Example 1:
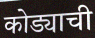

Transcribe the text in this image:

कोड्याची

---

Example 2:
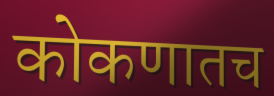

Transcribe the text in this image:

कोकणातच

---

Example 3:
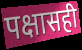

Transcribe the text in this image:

पक्षासही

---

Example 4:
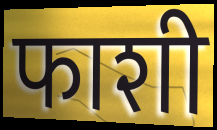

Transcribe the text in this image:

फाशी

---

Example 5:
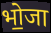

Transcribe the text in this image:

भो॒जा